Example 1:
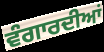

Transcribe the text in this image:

ਵੰਗਾਰਦੀਆਂ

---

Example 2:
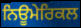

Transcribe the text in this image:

ਨਿਊਮੇਰਿਕਲ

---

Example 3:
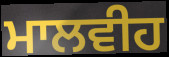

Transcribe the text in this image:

ਮਾਲਵੀਹ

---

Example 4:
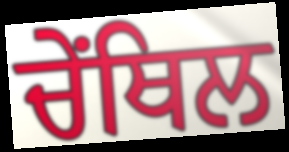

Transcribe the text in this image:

ਚੇਂਥਿਲ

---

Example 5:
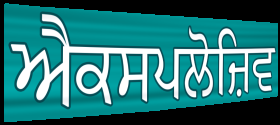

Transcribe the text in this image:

ਐਕਸਪਲੋਜ਼ਿਵ